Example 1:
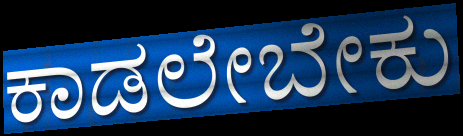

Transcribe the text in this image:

ಕಾಡಲೇಬೇಕು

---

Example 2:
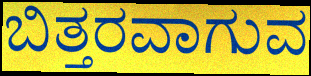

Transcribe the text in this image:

ಬಿತ್ತರವಾಗುವ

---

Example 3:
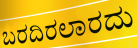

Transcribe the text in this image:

ಬರದಿರಲಾರದು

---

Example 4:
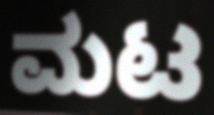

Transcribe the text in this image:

ಮಟ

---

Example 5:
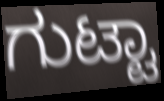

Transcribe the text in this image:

ಗುಟ್ಟಾ